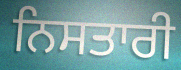
ਨਿਸਤਾਰੀ